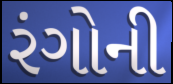
રંગોની